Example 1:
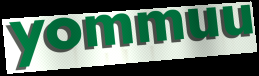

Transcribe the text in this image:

yommuu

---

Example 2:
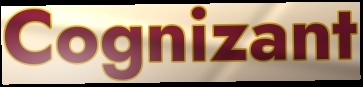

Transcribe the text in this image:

Cognizant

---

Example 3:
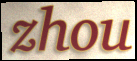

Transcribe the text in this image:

zhou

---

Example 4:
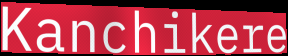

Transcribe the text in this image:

Kanchikere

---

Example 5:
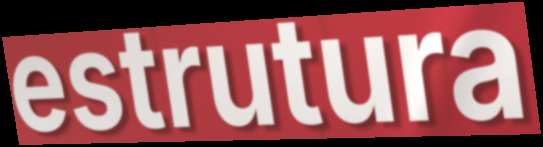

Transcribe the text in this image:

estrutura